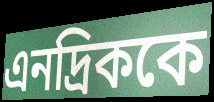
এনদ্রিককে